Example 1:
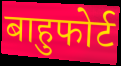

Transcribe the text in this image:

बाहुफोर्ट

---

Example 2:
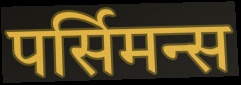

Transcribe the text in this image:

पर्सिमन्स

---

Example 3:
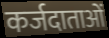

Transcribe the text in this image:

कर्जदाताओं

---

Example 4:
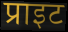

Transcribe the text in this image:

प्राइट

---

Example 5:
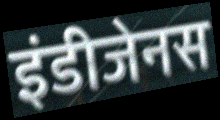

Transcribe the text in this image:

इंडीजेनस